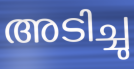
അടിച്ചു